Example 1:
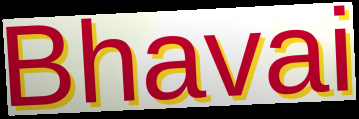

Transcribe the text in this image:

Bhavai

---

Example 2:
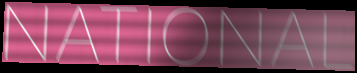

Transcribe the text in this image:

NATIONAL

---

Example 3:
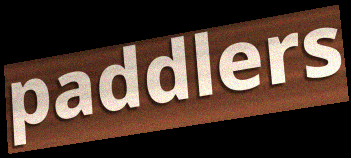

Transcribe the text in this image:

paddlers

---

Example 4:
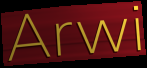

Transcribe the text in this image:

Arwi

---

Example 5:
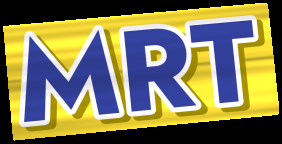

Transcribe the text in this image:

MRT